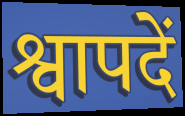
श्वापदें